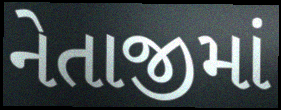
નેતાજીમાં